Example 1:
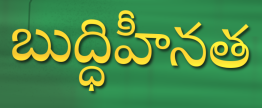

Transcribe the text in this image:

బుద్ధిహీనత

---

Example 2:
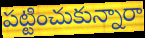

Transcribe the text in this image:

పట్టించుకున్నారా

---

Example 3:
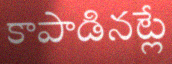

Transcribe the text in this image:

కాపాడినట్లే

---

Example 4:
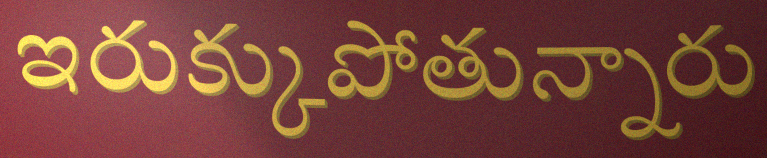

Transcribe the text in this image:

ఇరుక్కుపోతున్నారు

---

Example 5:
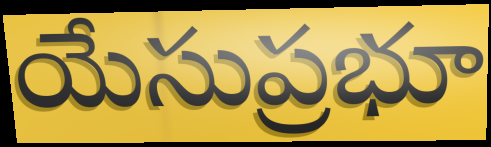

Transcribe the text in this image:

యేసుప్రభూ